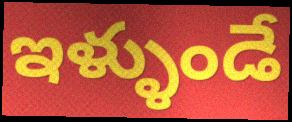
ఇళ్ళుండే